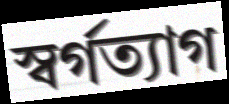
স্বর্গত্যাগ